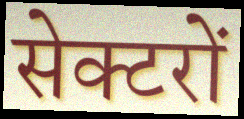
सेक्टरों